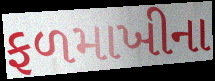
ફળમાખીના